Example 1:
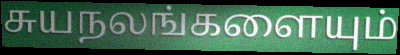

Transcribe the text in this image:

சுயநலங்களையும்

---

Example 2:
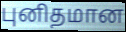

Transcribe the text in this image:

புனிதமான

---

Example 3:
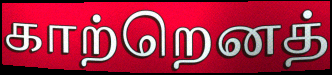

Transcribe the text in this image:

காற்றெனத்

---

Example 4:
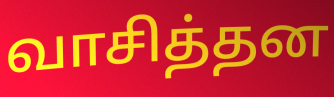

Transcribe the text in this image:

வாசித்தன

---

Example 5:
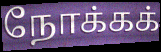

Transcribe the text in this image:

நோக்கக்